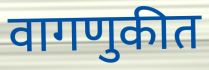
वागणुकीत